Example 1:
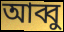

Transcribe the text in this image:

আব্বু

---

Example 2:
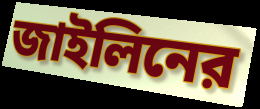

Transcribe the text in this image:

জাইলিনের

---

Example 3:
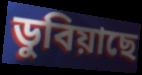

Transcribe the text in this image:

ডুবিয়াছে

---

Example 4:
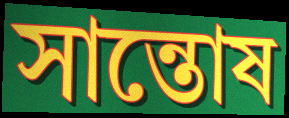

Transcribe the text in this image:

সান্তোষ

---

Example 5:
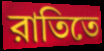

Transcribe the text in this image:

রাতিতে